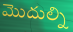
మొదుల్ని